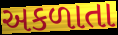
અકળાતા